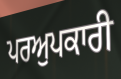
ਪਰਅੁਪਕਾਰੀ